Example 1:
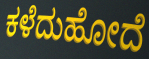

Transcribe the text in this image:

ಕಳೆದುಹೋದೆ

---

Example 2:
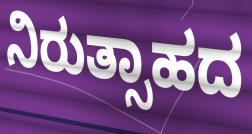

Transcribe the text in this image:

ನಿರುತ್ಸಾಹದ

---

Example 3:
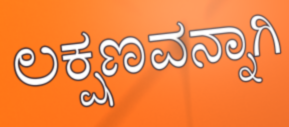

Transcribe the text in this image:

ಲಕ್ಷಣವನ್ನಾಗಿ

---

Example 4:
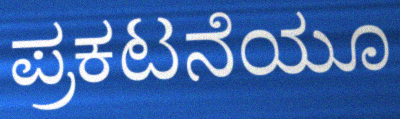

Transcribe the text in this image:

ಪ್ರಕಟನೆಯೂ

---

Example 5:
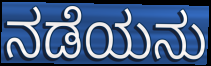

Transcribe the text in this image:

ನಡೆಯನು